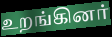
உறங்கினர்